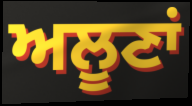
ਅਲੂਣਾਂ